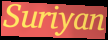
Suriyan